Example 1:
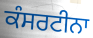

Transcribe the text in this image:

ਕੰਸਰਟੀਨਾ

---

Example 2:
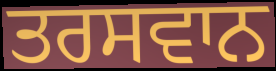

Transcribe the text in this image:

ਤਰਸਵਾਨ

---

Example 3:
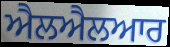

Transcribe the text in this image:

ਐਲਐਲਆਰ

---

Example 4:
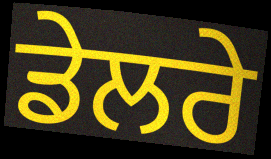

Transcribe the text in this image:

ਡੇਲਰੇ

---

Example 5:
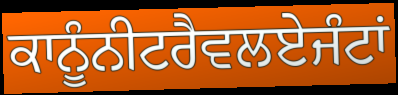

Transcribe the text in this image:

ਕਾਨੂੰਨੀਟਰੈਵਲਏਜੰਟਾਂ